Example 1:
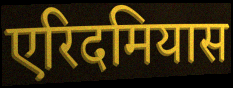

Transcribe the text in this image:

एरिदमियास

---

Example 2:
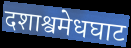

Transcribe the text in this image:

दशाश्वमेधघाट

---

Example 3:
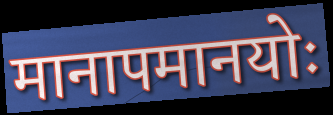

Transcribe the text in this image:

मानापमानयोः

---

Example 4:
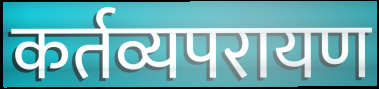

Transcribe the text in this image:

कर्तव्यपरायण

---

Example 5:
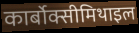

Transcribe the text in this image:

कार्बोक्सीमिथाइल